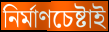
নির্মাণচেষ্টাই